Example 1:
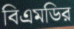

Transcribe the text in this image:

বিএমডির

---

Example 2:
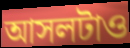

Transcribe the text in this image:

আসলটাও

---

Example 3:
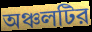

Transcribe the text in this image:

অঞ্চলটির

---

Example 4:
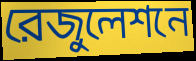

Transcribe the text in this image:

রেজুলেশনে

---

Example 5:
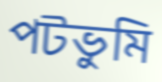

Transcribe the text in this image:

পটভুমি